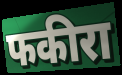
फकीरा